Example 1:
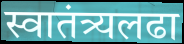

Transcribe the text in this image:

स्वातंत्र्यलढा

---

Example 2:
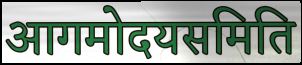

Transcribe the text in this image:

आगमोदयसमिति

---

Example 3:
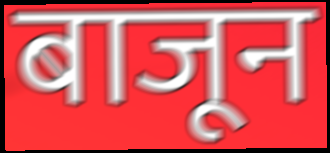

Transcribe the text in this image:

बाजून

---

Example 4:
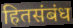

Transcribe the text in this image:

हितसंबंध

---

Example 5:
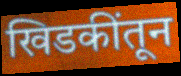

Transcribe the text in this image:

खिडकींतून